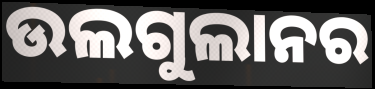
ଉଲଗୁଲାନର